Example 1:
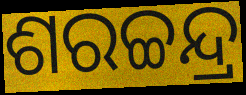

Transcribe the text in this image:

ଶରଚ୍ଚନ୍ଦ୍ର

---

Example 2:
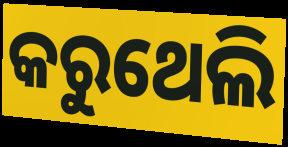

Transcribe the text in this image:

କରୁଥେଲି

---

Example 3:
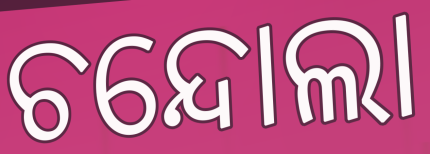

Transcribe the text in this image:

ଚନ୍ଦୋଲା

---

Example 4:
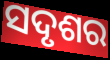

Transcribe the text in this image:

ସଦୃଶର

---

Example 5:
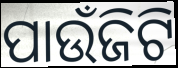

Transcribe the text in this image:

ପାଉଁଜିଟି